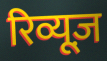
रिव्यूज़